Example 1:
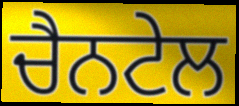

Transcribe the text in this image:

ਚੈਨਟੇਲ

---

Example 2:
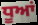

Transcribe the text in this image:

ਧੂਆਂ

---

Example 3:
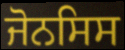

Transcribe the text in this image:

ਜੋਨਸਿਸ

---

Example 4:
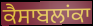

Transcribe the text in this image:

ਕੈਸਾਬਲਾਂਕਾ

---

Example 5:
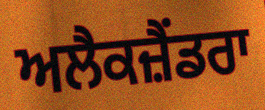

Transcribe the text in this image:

ਅਲੈਕਜ਼ੈਂਡਰਾ